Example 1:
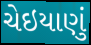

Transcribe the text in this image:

ચેઇયાણું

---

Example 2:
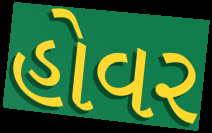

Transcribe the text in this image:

હોવર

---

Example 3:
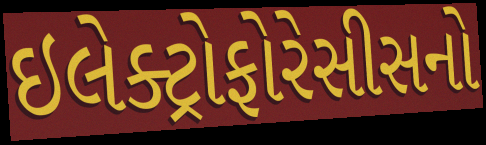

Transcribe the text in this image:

ઇલેક્ટ્રોફોરેસીસનો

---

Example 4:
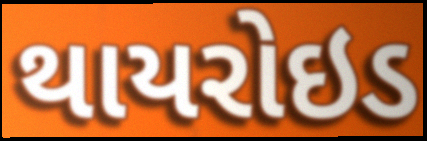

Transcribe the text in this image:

થાયરોઇડ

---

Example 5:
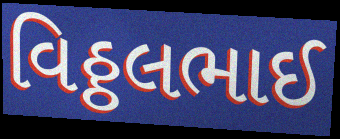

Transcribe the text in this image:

વિઠ્ઠલભાઈ